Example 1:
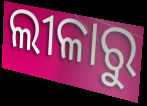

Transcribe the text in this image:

ଲୀଳାରୁ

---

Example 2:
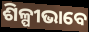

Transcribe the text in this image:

ଶିଳ୍ପୀଭାବେ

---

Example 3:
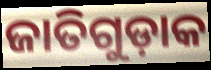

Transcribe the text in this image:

ଜାତିଗୁଡ଼ାକ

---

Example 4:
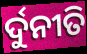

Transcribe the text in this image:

ର୍ଦୁନୀତି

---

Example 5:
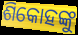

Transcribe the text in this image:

ଶିକୋହଙ୍କୁ